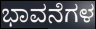
ಭಾವನೆಗಳ